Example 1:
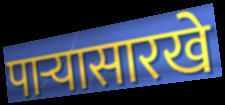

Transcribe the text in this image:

पाऱ्यासारखे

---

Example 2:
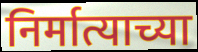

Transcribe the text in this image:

निर्मात्याच्या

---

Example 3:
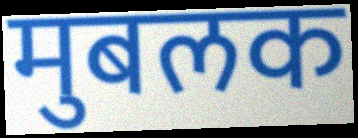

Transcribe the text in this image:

मुबलक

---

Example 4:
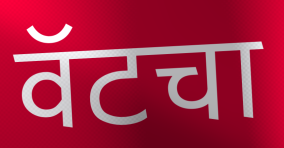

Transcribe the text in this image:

वॅटचा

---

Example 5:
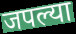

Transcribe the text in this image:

जपल्या